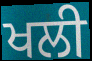
ਖਲੀ